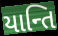
યાન્તિ